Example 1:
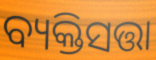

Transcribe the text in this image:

ବ୍ୟକ୍ତିସତ୍ତା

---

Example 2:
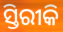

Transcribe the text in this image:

ସ୍ତିରୀକି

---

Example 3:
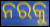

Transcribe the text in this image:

ନରକୁ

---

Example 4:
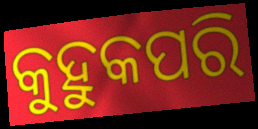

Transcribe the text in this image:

କୁହୁକପରି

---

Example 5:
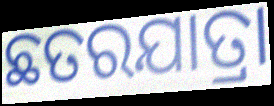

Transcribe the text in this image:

ଛତରଯାତ୍ରା